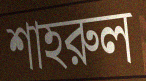
শাহরুল